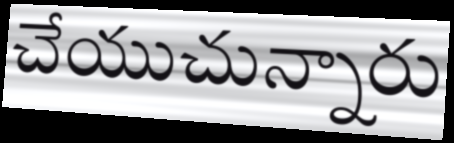
చేయుచున్నారు